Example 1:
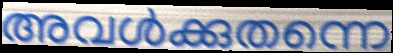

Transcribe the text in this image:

അവൾക്കുതന്നെ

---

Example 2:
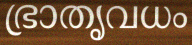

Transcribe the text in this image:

ഭ്രാതൃവധം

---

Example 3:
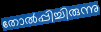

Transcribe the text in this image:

തോൽപ്പിച്ചിരുന്നു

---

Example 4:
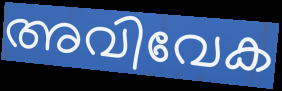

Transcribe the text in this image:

അവിവേക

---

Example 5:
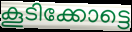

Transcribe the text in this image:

കൂടിക്കോട്ടെ